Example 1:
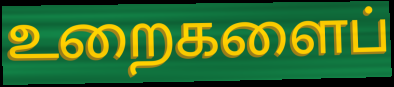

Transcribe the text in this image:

உறைகளைப்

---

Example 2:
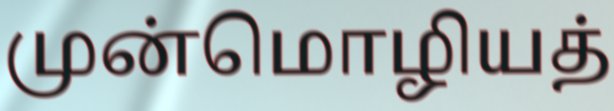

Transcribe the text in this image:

முன்மொழியத்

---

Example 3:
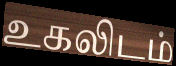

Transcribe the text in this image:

உகலிடம்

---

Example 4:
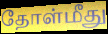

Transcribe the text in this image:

தோள்மீது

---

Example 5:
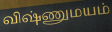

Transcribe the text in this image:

விஷ்ணுமயம்